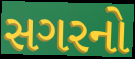
સગરનો